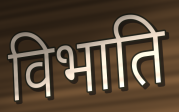
विभाति